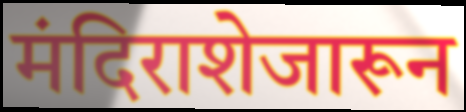
मंदिराशेजारून